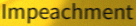
Impeachment